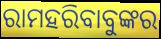
ରାମହରିବାବୁଙ୍କର